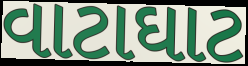
વાટાઘાટ